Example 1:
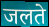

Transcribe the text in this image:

जलते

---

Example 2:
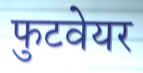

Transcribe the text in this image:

फुटवेयर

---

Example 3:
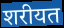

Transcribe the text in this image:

शरीयत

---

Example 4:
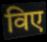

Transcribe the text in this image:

विए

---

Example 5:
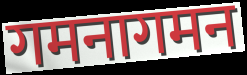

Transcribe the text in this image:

गमनागमन